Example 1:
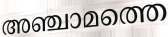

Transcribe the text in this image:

അഞ്ചാമത്തെ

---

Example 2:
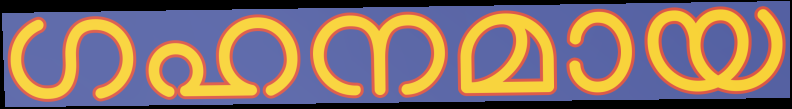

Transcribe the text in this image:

ഗഹനമായ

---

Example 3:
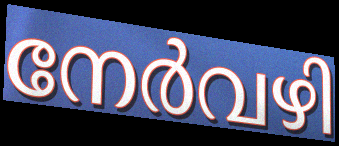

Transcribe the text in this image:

നേർവഴി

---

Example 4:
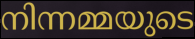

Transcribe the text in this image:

നിന്നമ്മയുടെ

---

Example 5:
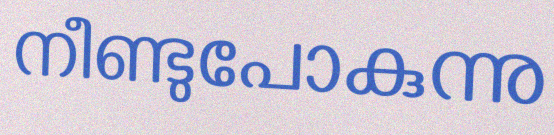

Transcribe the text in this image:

നീണ്ടുപോകുന്നു